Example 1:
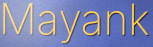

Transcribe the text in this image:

Mayank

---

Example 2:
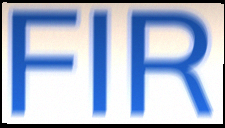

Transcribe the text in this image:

FIR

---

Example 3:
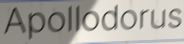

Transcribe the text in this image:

Apollodorus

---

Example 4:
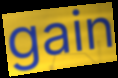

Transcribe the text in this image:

gain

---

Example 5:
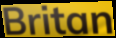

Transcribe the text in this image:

Britan